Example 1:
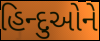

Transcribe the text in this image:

હિન્દુઓને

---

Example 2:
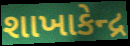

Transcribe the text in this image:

શાખાકેન્દ્ર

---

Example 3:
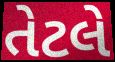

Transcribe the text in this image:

તેટલે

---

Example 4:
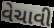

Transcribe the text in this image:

વેચાવી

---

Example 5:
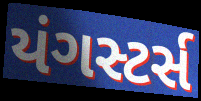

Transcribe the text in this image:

યંગસ્ટર્સ